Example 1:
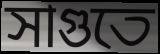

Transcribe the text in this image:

সাগুতে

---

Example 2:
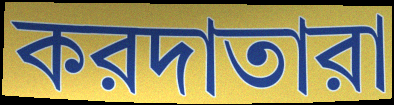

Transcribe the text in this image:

করদাতারা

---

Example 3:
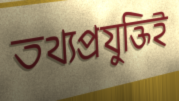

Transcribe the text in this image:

তথ্যপ্রযুক্তিই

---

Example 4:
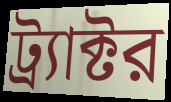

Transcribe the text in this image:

ট্র্যাক্টর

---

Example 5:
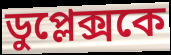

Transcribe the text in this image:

ডুপ্লেক্সকে